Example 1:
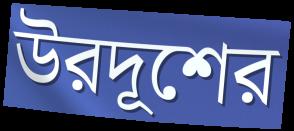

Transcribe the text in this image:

উরদূশের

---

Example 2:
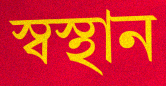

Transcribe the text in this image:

স্বস্থান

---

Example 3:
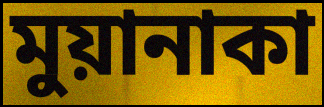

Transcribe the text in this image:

মুয়ানাকা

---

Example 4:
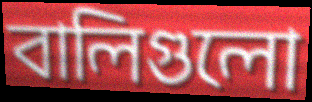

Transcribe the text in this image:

বালিগুলো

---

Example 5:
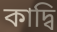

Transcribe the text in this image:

কাদ্বি